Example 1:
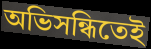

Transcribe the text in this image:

অভিসন্ধিতেই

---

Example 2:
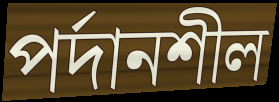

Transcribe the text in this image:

পর্দানশীল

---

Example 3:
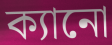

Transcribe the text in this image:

ক্যানো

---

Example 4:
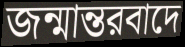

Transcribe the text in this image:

জন্মান্তরবাদে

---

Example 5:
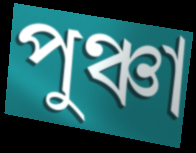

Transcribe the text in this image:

পুঞ্চা